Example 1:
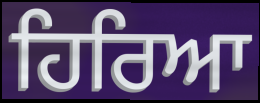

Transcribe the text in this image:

ਹਿਰਿਆ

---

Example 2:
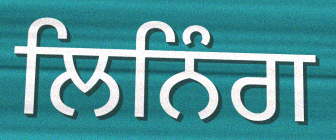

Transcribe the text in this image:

ਲਿਨਿੰਗ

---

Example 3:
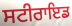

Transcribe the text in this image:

ਸਟੀਰਾਇਡ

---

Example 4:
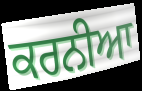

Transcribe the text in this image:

ਕਰਨੀਆ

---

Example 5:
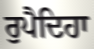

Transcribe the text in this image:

ਰੁਪੈਦਿਹਾ